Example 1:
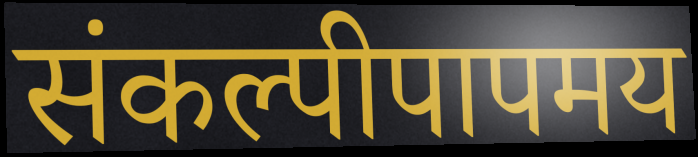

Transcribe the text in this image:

संकल्पीपापमय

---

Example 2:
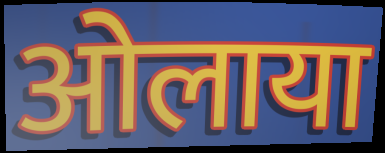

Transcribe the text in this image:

ओलाया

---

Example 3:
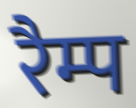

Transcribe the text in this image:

रैम्प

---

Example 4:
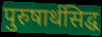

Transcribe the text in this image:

पुरुषार्थसिद्ध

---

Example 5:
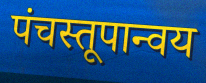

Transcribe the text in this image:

पंचस्तूपान्वय